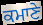
ਕਮਾਣੇ